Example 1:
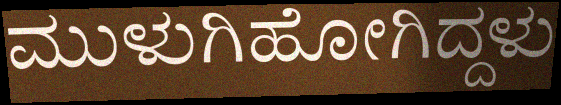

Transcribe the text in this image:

ಮುಳುಗಿಹೋಗಿದ್ದಳು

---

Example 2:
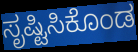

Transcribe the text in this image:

ಸೃಷ್ಟಿಸಿಕೊಂಡ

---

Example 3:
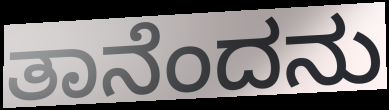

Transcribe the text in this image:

ತಾನೆಂದನು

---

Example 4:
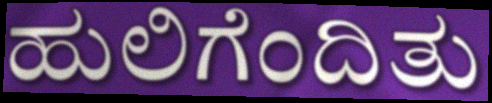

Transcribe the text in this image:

ಹುಲಿಗೆಂದಿತು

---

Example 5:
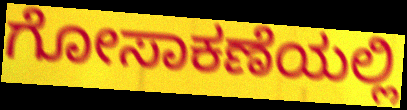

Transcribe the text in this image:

ಗೋಸಾಕಣೆಯಲ್ಲಿ